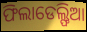
ଫିଲାଡେଲ୍ଫିଆ